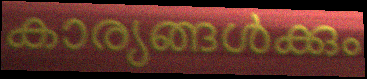
കാര്യങ്ങൾക്കും